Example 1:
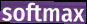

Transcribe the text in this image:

softmax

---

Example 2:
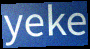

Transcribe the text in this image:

yeke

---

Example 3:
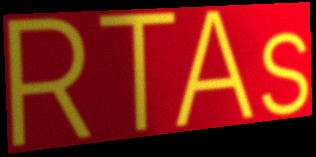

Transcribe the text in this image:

RTAs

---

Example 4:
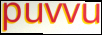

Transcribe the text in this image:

puvvu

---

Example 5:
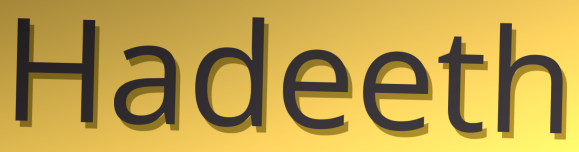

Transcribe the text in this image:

Hadeeth